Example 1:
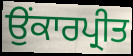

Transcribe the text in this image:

ਉਂਕਾਰਪ੍ਰੀਤ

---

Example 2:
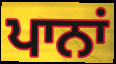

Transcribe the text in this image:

ਪਾਨਾਂ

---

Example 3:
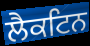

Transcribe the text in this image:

ਲੈਕਟਿਨ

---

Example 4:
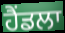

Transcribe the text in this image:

ਹੈਂਡਲਾ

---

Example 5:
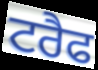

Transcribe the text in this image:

ਟਰੈਫ